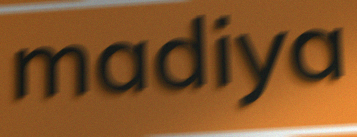
madiya